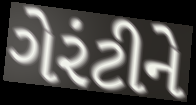
ગેરંટીને